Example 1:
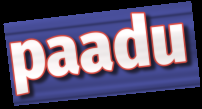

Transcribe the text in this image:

paadu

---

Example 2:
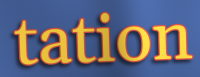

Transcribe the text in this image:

tation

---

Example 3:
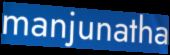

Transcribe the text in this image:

manjunatha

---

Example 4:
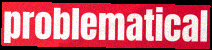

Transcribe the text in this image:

problematical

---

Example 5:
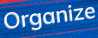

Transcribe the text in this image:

Organize